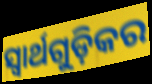
ସ୍ୱାର୍ଥଗୁଡ଼ିକର